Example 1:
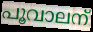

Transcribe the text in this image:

പൂവാലന്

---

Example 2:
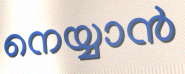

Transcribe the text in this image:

നെയ്യാൻ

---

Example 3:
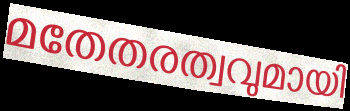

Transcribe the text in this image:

മതേതരത്വവുമായി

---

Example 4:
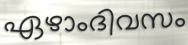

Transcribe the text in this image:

ഏഴാംദിവസം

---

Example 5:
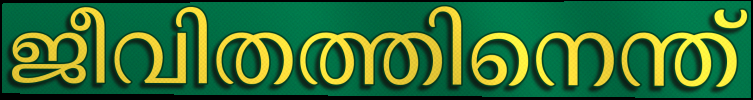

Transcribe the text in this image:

ജീവിതത്തിനെന്ത്